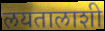
लयतालाशी